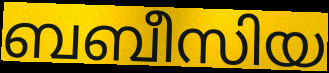
ബബീസിയ